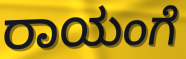
ರಾಯಂಗೆ